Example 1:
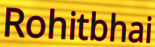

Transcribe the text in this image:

Rohitbhai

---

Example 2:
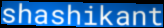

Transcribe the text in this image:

shashikant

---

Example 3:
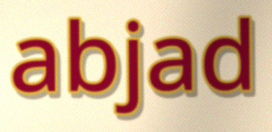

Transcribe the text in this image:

abjad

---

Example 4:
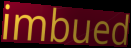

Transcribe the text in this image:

imbued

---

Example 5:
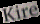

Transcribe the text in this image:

Kire